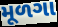
મૂળગા